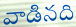
వాడినది